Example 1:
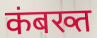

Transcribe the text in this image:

कंबख्त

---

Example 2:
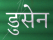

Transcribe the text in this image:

डुसेन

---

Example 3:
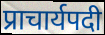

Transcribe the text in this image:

प्राचार्यपदी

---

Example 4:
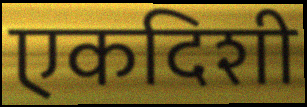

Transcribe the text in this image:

एकदिशी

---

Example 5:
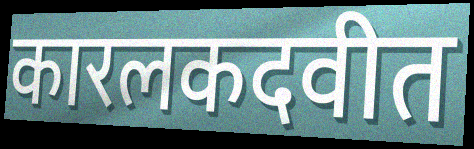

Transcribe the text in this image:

कारलकदवीत